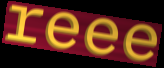
reee